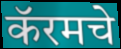
कॅरमचे